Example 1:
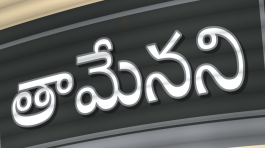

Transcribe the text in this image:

తామేనని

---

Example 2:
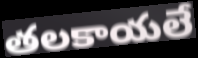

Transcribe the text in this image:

తలకాయలే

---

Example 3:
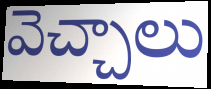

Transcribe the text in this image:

వెచ్చాలు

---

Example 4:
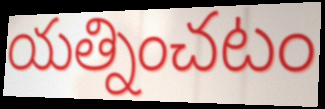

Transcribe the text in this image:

యత్నించటం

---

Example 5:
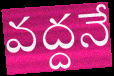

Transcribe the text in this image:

వద్దనే